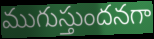
ముగుస్తుందనగా